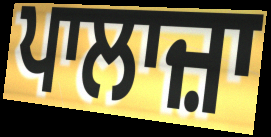
ਪਾਲਾਜ਼ਾ